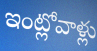
ఇంట్లోవాళ్లు